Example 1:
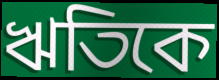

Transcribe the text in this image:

ঋতিকে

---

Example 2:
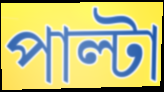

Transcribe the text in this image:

পাল্টা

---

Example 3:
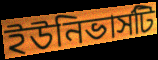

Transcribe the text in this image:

ইউনিভার্সটি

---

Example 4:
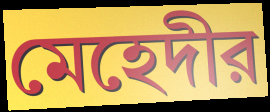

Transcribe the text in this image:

মেহেদীর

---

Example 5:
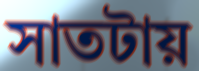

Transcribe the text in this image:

সাতটায়